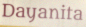
Dayanita